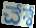
చేశే